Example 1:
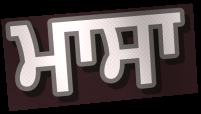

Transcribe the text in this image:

ਮਾਸਾ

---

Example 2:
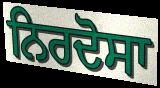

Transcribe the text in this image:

ਨਿਰਦੋਸਾ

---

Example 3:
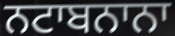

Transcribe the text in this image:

ਨਟਾਬਨਾਨਾ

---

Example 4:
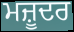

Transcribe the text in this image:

ਮਜ਼ੂਦਰ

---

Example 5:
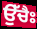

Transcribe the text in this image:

ਉੱਚੈਃ